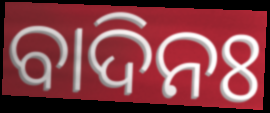
ବାଦିନଃ